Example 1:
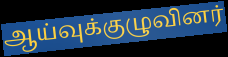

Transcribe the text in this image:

ஆய்வுக்குழுவினர்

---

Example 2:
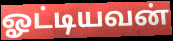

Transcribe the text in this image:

ஓட்டியவன்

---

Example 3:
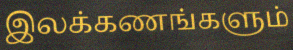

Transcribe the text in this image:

இலக்கணங்களும்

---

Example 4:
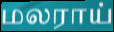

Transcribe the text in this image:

மலராய்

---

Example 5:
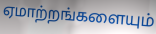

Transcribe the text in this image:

ஏமாற்றங்களையும்